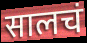
सालचं